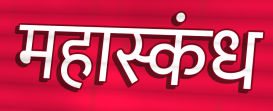
महास्कंध